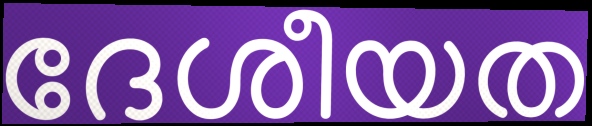
ദേശീയത